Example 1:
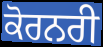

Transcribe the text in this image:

ਕੋਰਨਰੀ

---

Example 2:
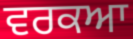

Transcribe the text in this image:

ਵਰਕਆ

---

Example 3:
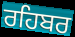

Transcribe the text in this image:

ਰਹਿਬਰ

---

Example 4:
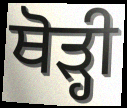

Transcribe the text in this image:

ਥੋਡ਼੍ਹੀ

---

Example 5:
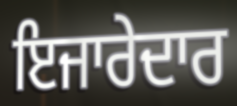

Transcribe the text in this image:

ਇਜਾਰੇਦਾਰ